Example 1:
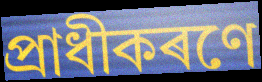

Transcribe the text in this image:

প্ৰাধীকৰণে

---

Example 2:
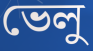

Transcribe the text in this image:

ভেলু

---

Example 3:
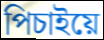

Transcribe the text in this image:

পিচাইয়ে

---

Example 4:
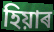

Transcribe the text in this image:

হিয়াৰ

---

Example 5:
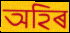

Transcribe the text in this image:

অহিৰ